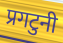
प्रगटुनी